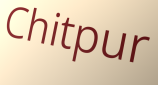
Chitpur